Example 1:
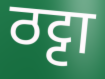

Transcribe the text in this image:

ठट्टा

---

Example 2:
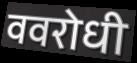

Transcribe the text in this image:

ववरोधी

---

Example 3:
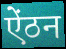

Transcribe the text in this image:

ऐंठन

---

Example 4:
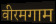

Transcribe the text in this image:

वीरमगाम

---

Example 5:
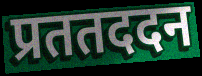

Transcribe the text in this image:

प्रततददन